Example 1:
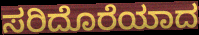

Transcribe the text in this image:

ಸರಿದೊರೆಯಾದ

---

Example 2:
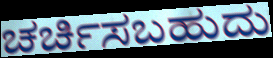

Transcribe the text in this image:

ಚರ್ಚಿಸಬಹುದು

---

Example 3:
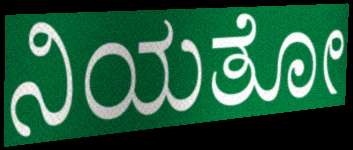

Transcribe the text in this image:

ನಿಯತೋ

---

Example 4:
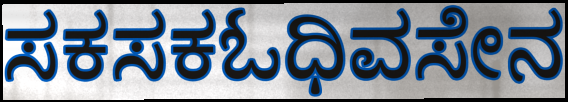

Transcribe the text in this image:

ಸಕಸಕಓಧಿವಸೇನ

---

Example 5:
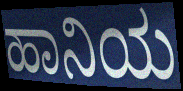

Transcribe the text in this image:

ಹಾನಿಯ